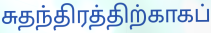
சுதந்திரத்திற்காகப்